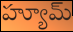
హ్యూమ్